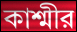
কাশ্মীর